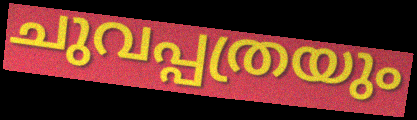
ചുവപ്പത്രയും